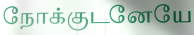
நோக்குடனேயே